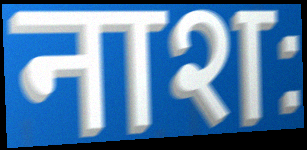
नाशः